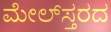
ಮೇಲ್‌ಸ್ತರದ